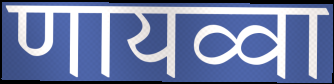
णायव्वा